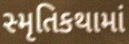
સ્મૃતિકથામાં